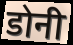
डोनी